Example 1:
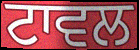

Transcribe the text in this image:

ਟਾਵਲ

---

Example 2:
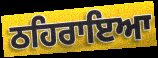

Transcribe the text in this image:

ਠਹਿਰਾਇਆ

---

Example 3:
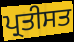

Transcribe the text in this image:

ਪ੍ਰਤੀਸਤ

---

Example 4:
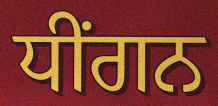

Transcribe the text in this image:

ਧੀਂਗਨ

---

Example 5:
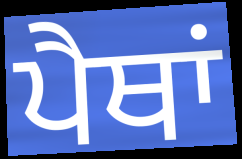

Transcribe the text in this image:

ਪੈਥਾਂ